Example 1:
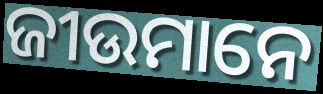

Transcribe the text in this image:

ଜୀଉମାନେ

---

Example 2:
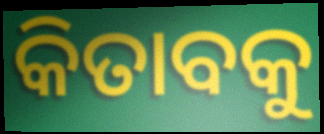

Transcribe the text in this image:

କିତାବକୁ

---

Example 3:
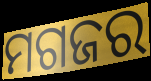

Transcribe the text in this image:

ମଗଜର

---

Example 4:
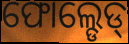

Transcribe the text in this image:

ଫୋଲ୍ଡେଡ୍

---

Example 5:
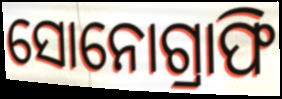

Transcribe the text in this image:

ସୋନୋଗ୍ରାଫି